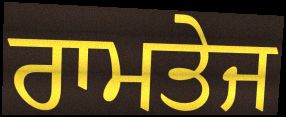
ਰਾਮਤੇਜ